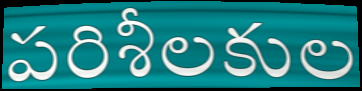
పరిశీలకుల